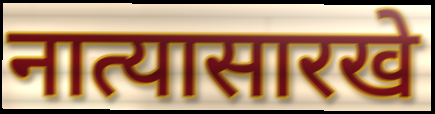
नात्यासारखे